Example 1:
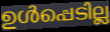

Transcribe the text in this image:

ഉൾപ്പെടില്ല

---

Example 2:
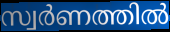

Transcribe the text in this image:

സ്വർണത്തിൽ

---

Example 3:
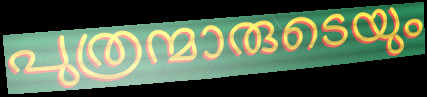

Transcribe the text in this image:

പുത്രന്മാരുടെയും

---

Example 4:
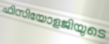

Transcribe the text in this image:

ഫിസിയോളജിയുടെ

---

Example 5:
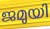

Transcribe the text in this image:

ജമുയി